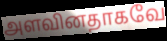
அளவினதாகவே